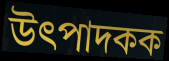
উৎপাদকক